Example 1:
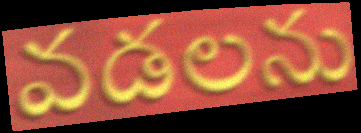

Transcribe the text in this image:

వడలను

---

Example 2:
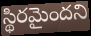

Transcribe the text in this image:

స్థిరమైందని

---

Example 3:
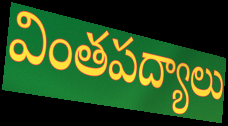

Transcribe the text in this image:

వింతపద్యాలు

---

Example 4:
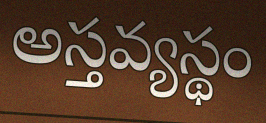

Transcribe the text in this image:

అస్తవ్యస్థం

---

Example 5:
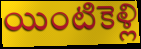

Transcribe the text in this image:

యింటికెళ్లి